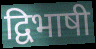
द्विभाषी